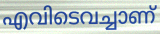
എവിടെവച്ചാണ്